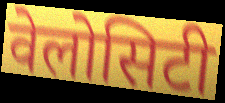
वेलोसिटी